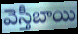
వెస్తీబాయి